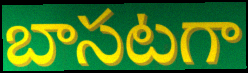
బాసటగా